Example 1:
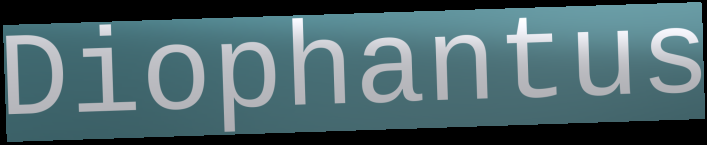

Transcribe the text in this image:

Diophantus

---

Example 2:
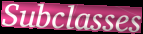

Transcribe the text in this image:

Subclasses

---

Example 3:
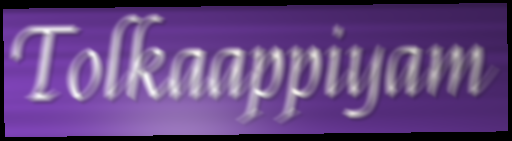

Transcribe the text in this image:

Tolkaappiyam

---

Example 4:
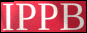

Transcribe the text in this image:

IPPB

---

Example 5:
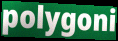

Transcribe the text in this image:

polygoni